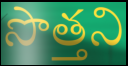
సొత్తని